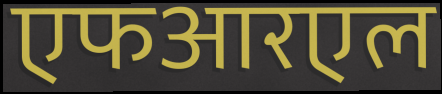
एफआरएल